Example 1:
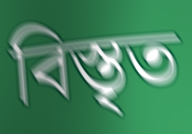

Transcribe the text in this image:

বিস্তৃত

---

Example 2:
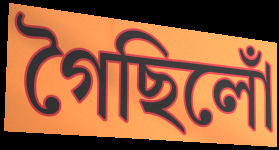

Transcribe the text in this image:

গৈছিলোঁ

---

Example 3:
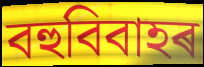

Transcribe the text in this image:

বহুবিবাহৰ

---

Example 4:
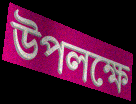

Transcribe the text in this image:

উপলক্ষে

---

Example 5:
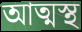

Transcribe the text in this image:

আত্মস্থ